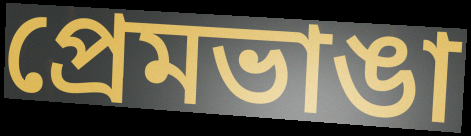
প্রেমভাঙা